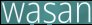
wasan